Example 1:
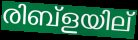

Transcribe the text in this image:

രിബ്ളയില്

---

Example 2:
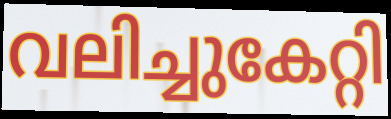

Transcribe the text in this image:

വലിച്ചുകേറ്റി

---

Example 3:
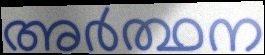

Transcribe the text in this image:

അർത്ഥന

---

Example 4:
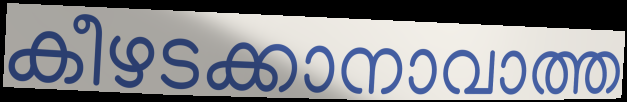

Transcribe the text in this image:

കീഴടക്കാനാവാത്ത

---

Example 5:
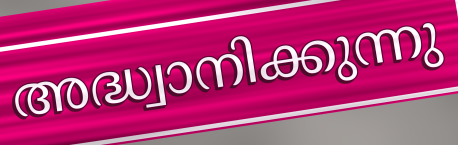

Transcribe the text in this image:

അദ്ധ്വാനിക്കുന്നു